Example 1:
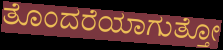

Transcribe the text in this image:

ತೊಂದರೆಯಾಗುತ್ತೋ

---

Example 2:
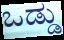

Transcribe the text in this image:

ಒಡ್ಡು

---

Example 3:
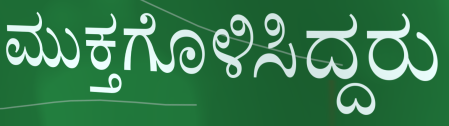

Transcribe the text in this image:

ಮುಕ್ತಗೊಳಿಸಿದ್ದರು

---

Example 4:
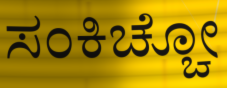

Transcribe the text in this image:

ಸಂಕಿಚ್ಚೋ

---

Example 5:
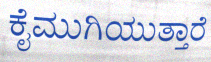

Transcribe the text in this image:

ಕೈಮುಗಿಯುತ್ತಾರೆ